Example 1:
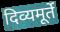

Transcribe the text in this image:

दिव्यमूर्ते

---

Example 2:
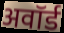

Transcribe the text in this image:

अवॉर्ड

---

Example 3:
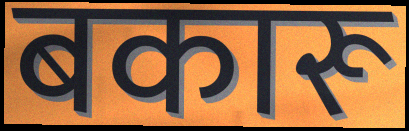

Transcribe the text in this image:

बकारू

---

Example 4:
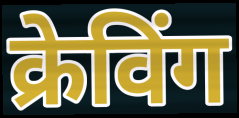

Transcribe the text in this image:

क्रेविंग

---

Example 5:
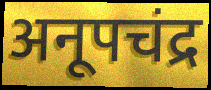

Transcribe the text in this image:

अनूपचंद्र